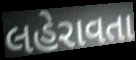
લહેરાવતા